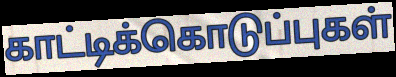
காட்டிக்கொடுப்புகள்